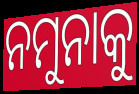
ନମୁନାକୁ